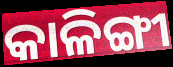
କାଳିଙ୍ଗୀ